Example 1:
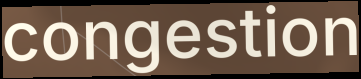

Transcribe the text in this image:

congestion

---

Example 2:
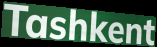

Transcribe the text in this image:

Tashkent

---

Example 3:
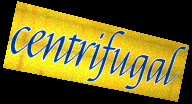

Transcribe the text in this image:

centrifugal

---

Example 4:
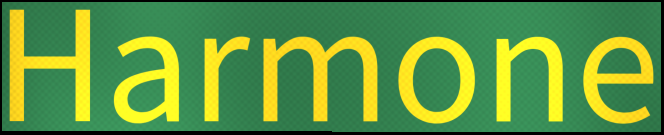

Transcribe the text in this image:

Harmone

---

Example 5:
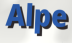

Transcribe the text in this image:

Alpe